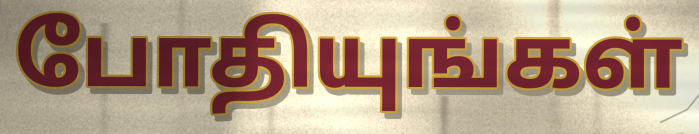
போதியுங்கள்